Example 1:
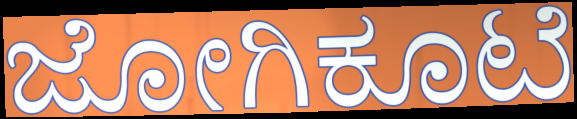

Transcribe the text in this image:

ಜೋಗಿಕೂಟೆ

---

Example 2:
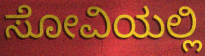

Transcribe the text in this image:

ಸೋವಿಯಲ್ಲಿ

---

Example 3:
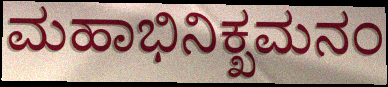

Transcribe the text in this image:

ಮಹಾಭಿನಿಕ್ಖಮನಂ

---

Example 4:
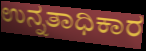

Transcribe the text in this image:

ಉನ್ನತಾಧಿಕಾರ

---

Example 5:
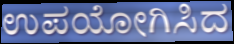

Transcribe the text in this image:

ಉಪಯೋಗಿಸಿದ